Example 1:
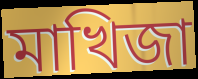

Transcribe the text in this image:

মাখিজা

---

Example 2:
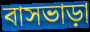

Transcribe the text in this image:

বাসভাড়া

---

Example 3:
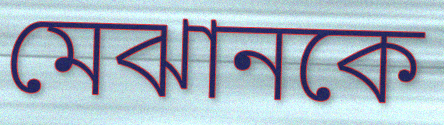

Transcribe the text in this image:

মেঝানকে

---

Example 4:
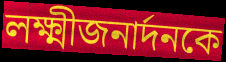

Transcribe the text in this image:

লক্ষ্মীজনার্দনকে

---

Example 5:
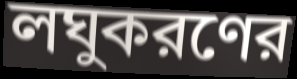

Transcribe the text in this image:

লঘুকরণের